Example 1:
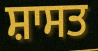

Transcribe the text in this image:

ਸ਼ਾਸਤ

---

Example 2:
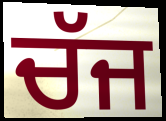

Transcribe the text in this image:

ਚੱਜ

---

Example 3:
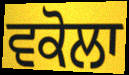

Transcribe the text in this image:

ਵਕੋਲਾ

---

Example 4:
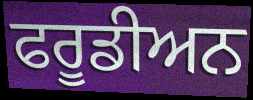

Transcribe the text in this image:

ਫਰੂਡੀਅਨ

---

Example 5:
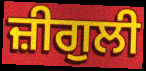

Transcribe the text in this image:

ਜ਼ੀਗੁਲੀ